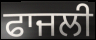
ਫਾਜਲੀ